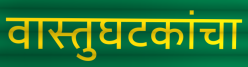
वास्तुघटकांचा